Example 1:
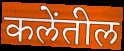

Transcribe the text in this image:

कलेंतील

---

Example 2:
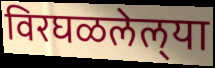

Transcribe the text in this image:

विरघळलेल्या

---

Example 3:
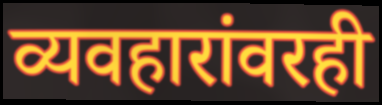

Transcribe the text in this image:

व्यवहारांवरही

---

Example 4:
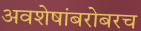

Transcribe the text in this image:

अवशेषांबरोबरच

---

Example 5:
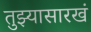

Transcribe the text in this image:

तुझ्यासारखं